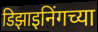
डिझाइनिंगच्या